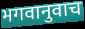
भगवानुवाच